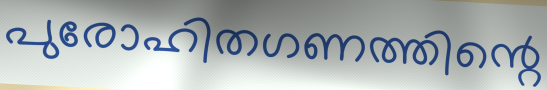
പുരോഹിതഗണത്തിന്റെ